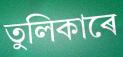
তুলিকাৰে